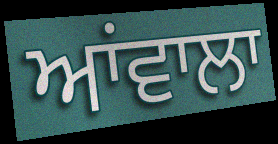
ਆਂਵਾਲਾ